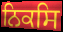
ਨਿਕਸਿ